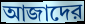
আজাদের